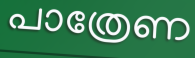
പാത്രേണ